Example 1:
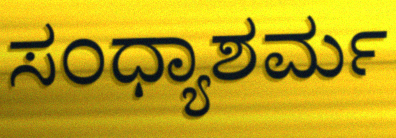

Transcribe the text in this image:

ಸಂಧ್ಯಾಶರ್ಮ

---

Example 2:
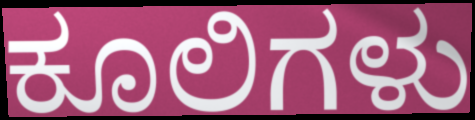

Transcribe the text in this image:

ಕೂಲಿಗಳು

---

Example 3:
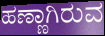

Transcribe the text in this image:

ಹಣ್ಣಾಗಿರುವ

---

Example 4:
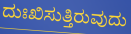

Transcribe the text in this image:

ದುಃಖಿಸುತ್ತಿರುವುದು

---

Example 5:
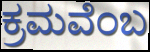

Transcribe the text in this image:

ಕ್ರಮವೆಂಬ